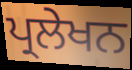
ਪ੍ਰਲੇਖਨ